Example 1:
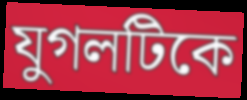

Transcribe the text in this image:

যুগলটিকে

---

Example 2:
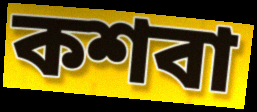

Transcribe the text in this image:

কশবা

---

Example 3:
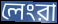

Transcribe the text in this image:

লেংরা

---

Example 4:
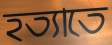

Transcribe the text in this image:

হত্যাতে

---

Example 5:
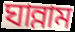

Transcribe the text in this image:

ঘান্নাম